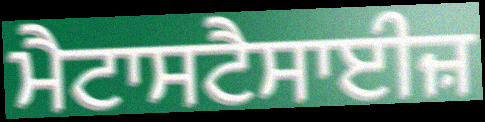
ਮੈਟਾਸਟੈਸਾਈਜ਼